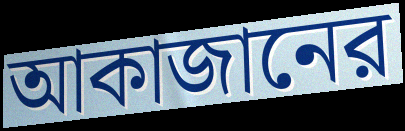
আকাজানের